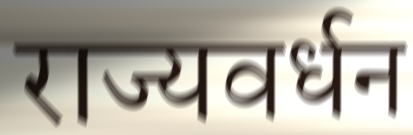
राज्यवर्धन